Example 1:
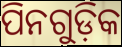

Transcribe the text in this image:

ପିନଗୁଡ଼ିକ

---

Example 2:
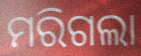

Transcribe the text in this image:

ମରିଗଲା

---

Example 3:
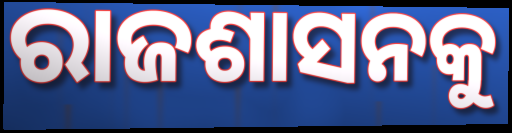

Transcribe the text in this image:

ରାଜଶାସନକୁ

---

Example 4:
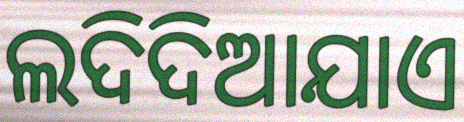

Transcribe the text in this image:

ଲଦିଦିଆଯାଏ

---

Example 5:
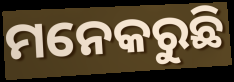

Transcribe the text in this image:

ମନେକରୁଛି